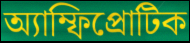
অ্যাম্ফিপ্রোটিক